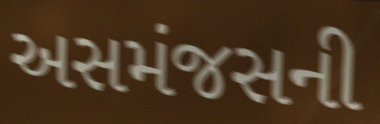
અસમંજસની